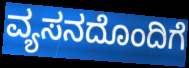
ವ್ಯಸನದೊಂದಿಗೆ